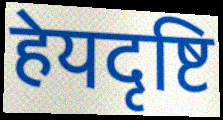
हेयदृष्टि